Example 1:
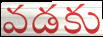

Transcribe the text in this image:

వడకు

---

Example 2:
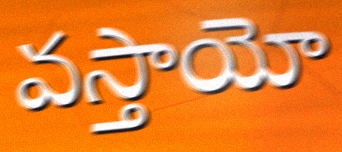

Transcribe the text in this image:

వస్తాయో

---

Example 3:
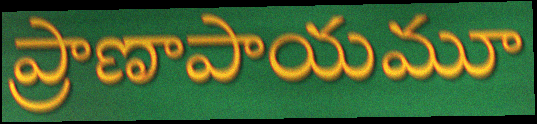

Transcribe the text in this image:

ప్రాణాపాయమూ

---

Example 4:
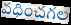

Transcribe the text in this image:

వధించగల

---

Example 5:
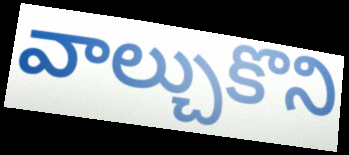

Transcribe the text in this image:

వాల్చుకొని